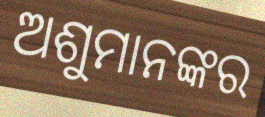
ଅଶୁମାନଙ୍କର